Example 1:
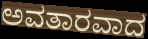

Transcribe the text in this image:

ಅವತಾರವಾದ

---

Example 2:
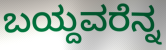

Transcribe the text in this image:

ಬಯ್ದವರೆನ್ನ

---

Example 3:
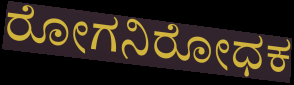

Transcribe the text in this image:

ರೋಗನಿರೋಧಕ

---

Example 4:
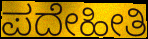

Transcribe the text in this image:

ಪದೇಹೀತಿ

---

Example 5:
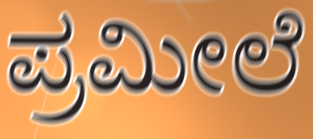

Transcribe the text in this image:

ಪ್ರಮೀಲೆ